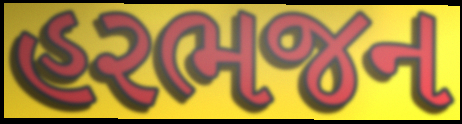
હરભજન